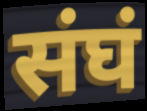
संघं